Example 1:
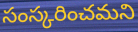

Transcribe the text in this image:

సంస్కరించమని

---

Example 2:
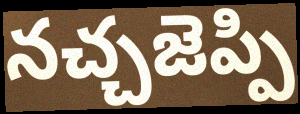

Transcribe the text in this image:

నచ్చజెప్పి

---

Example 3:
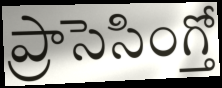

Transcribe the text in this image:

ప్రాసెసింగ్తో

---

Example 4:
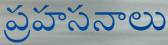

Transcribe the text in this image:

ప్రహసనాలు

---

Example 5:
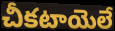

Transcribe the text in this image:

చీకటాయెలే